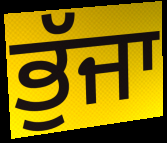
ਭੁੱਜਾ